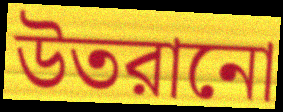
উতরানো